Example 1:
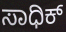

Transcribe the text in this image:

ಸಾಧಿಕ್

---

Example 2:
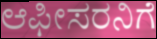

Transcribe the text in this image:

ಆಫೀಸರನಿಗೆ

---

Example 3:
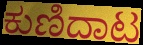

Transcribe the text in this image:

ಕುಣಿದಾಟ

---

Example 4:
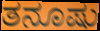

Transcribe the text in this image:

ತನೂಷು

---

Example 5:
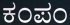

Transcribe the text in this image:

ಕಂಪಂ